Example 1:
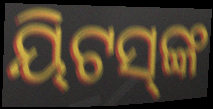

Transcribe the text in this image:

ୟିଟସ୍‌ଙ୍କ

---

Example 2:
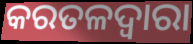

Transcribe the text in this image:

କରତଳଦ୍ଵାରା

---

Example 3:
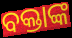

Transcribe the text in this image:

ବକ୍ତାଙ୍କ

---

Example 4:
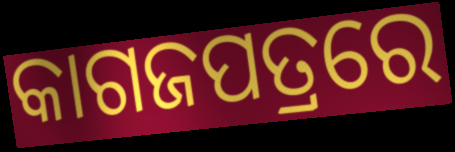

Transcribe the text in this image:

କାଗଜପତ୍ରରେ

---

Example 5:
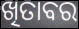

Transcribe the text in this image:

ଖିତାବର